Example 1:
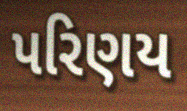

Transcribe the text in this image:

પરિણય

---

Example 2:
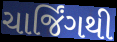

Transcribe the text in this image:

ચાર્જિંગથી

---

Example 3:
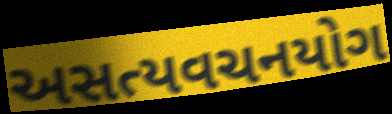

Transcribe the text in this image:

અસત્યવચનયોગ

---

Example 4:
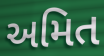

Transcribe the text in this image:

અમિત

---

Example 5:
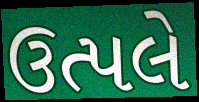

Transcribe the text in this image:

ઉત્પલે